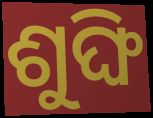
ଶୁଙ୍ଘି